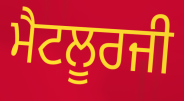
ਮੈਟਲੂਰਜੀ